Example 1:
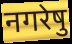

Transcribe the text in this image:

नगरेषु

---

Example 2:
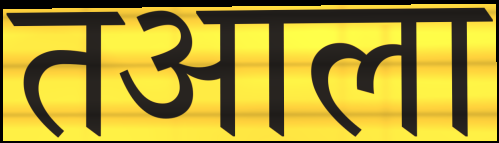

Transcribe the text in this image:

तआला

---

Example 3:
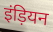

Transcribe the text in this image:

इंड़ियन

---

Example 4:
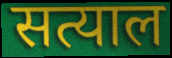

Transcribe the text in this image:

सत्याल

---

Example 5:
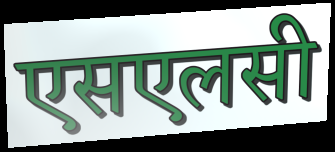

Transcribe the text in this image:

एसएलसी